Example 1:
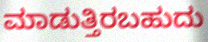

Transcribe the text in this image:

ಮಾಡುತ್ತಿರಬಹುದು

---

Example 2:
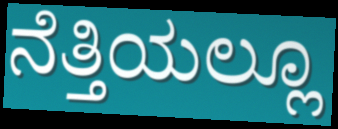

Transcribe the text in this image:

ನೆತ್ತಿಯಲ್ಲೂ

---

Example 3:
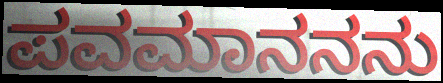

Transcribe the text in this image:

ಪವಮಾನನನು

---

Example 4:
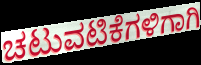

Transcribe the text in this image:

ಚಟುವಟಿಕೆಗಳಿಗಾಗಿ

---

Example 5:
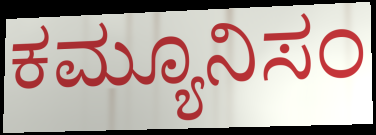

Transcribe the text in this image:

ಕಮ್ಯೂನಿಸಂ